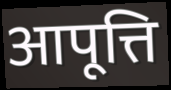
आपूत्ति